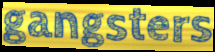
gangsters